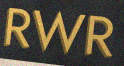
RWR